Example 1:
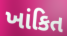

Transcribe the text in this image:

ખાંકિત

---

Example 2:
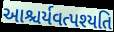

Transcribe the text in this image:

આશ્ચર્યવત્પશ્યતિ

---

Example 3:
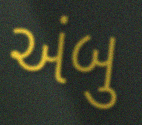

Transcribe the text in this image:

અંબુ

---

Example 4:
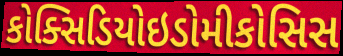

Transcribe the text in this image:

કોક્સિડિયોઇડોમીકોસિસ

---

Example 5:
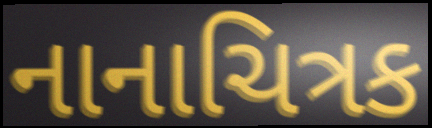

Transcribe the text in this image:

નાનાચિત્રક